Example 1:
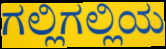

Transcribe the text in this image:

ಗಲ್ಲಿಗಲ್ಲಿಯ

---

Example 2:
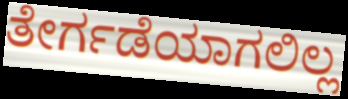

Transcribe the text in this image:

ತೇರ್ಗಡೆಯಾಗಲಿಲ್ಲ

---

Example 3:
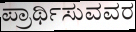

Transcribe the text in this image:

ಪ್ರಾರ್ಥಿಸುವವರ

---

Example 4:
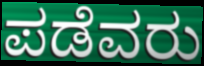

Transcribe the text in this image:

ಪಡೆವರು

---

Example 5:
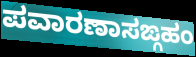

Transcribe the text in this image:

ಪವಾರಣಾಸಙ್ಗಹಂ